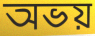
অভয়